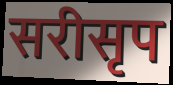
सरीसृप